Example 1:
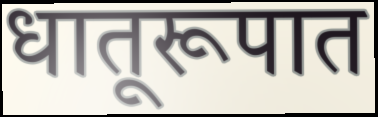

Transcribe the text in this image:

धातूरूपात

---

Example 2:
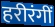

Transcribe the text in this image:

हरीरंगीं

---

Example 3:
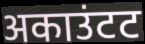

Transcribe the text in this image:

अकाउंटट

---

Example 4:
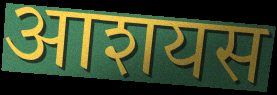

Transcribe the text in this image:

आशयस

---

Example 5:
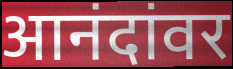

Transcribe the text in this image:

आनंदांवर